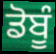
ਡੋਬੂੰ